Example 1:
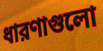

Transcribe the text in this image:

ধারণাগুলো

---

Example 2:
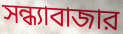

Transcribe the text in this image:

সন্ধ্যাবাজার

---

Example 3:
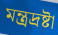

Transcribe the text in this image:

মন্ত্রদ্রষ্টা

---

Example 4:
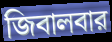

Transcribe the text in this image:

জিবালবার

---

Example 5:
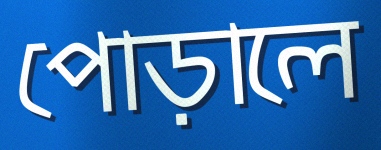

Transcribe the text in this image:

পোড়ালে